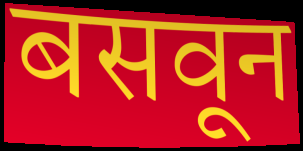
बसवून